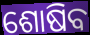
ଶୋଷିବ